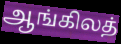
ஆங்கிலத்